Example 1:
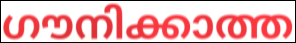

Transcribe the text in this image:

ഗൗനിക്കാത്ത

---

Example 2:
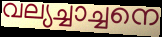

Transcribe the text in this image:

വല്യച്ചാച്ചനെ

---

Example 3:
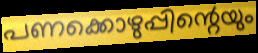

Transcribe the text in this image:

പണക്കൊഴുപ്പിന്റെയും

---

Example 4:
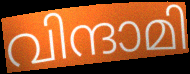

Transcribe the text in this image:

വിന്ദാമി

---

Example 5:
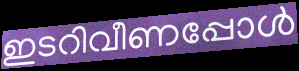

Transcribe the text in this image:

ഇടറിവീണപ്പോൾ